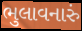
ભુલાવનારું